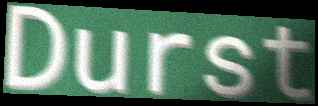
Durst